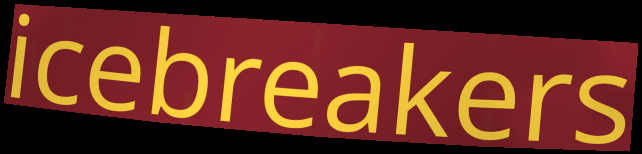
icebreakers